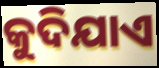
କୁଦିଯାଏ